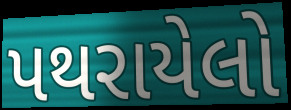
પથરાયેલો